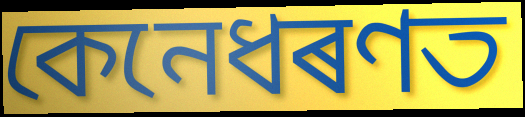
কেনেধৰণত